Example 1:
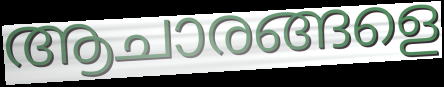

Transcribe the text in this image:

ആചാരങ്ങളെ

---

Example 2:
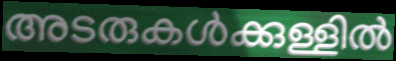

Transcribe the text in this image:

അടരുകൾക്കുള്ളിൽ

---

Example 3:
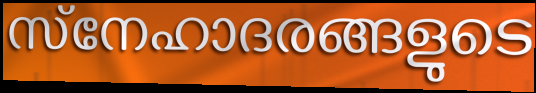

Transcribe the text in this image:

സ്‌നേഹാദരങ്ങളുടെ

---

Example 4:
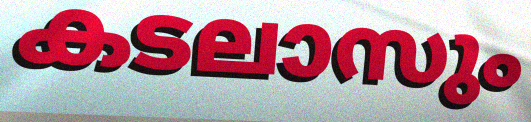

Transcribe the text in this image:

കടലാസും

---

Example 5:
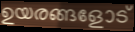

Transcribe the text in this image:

ഉയരങ്ങളോട്